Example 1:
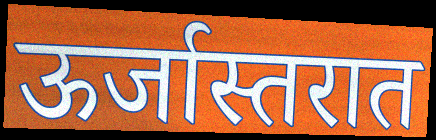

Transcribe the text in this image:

ऊर्जास्तरात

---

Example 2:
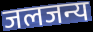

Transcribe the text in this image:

जलजन्य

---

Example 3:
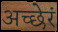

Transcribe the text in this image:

अच्छेरं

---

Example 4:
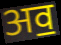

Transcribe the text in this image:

अव॒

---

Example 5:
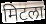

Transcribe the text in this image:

मिटला